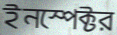
ইনস্পেক্টর